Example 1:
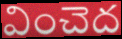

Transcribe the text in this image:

వించెద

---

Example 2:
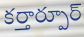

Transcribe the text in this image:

కర్తార్పూర్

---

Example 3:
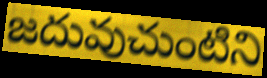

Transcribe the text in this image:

జదువుచుంటిని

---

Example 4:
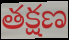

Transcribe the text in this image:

తక్షణ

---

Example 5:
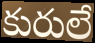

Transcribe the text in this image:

కురులే